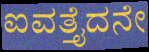
ಐವತ್ತೈದನೇ